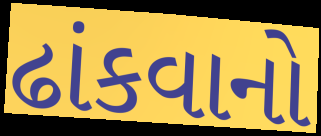
ઢાંકવાનો